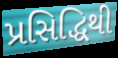
પ્રસિદ્ધિથી